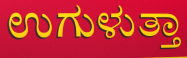
ಉಗುಳುತ್ತಾ